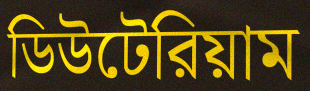
ডিউটেরিয়াম